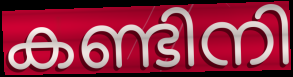
കണ്ടിനി